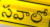
సవాలో